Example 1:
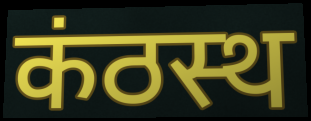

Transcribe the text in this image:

कंठस्थ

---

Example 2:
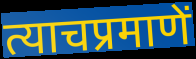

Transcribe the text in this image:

त्याचप्रमाणें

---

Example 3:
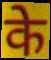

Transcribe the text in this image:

के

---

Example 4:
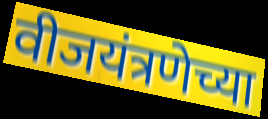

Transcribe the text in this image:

वीजयंत्रणेच्या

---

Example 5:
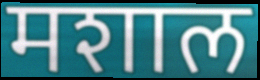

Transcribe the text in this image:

मशाल